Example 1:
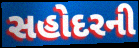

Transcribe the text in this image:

સહોદરની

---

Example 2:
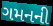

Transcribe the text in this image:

ગમનની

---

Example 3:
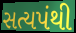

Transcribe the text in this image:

સત્યપંથી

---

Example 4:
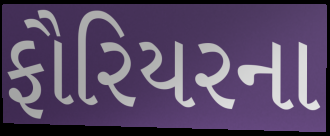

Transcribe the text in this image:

ફૌરિયરના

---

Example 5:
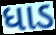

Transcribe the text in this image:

ધાડ